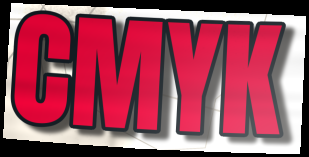
CMYK